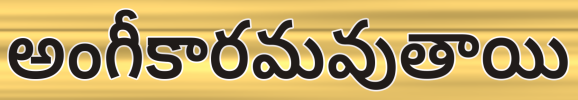
అంగీకారమవుతాయి